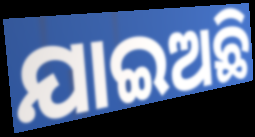
ଯାଇଅଛି